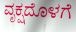
ವೃಕ್ಷದೊಳಗೆ